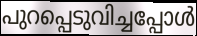
പുറപ്പെടുവിച്ചപ്പോൾ